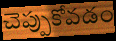
చెప్పుకోవడం